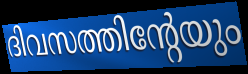
ദിവസത്തിന്റേയും